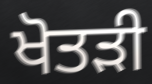
ਖੋਤੜੀ